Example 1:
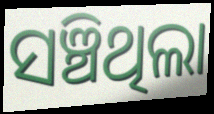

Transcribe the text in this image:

ସଞ୍ଚିଥିଲା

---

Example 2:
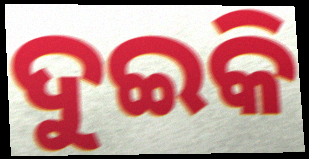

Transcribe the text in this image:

ଦୁଇକି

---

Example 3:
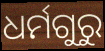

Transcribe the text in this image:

ଧର୍ମଗୁରୁ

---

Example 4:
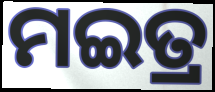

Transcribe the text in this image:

ମଇତ୍ର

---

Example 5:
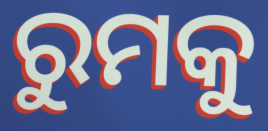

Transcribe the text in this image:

ରୁମକୁ